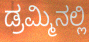
ಡ್ರಮ್ಮಿನಲ್ಲಿ